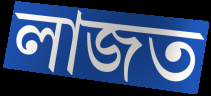
লাজত